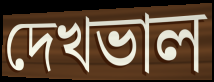
দেখভাল